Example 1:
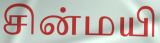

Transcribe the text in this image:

சின்மயி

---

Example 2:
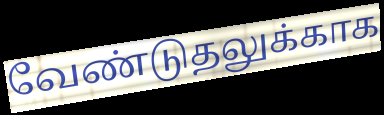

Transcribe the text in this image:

வேண்டுதலுக்காக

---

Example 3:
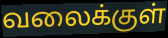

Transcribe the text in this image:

வலைக்குள்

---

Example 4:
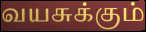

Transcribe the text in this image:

வயசுக்கும்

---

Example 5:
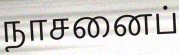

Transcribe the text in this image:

நாசனைப்